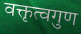
वक्तृत्वगुण